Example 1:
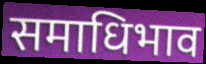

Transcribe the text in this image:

समाधिभाव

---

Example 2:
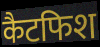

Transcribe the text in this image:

कैटफिश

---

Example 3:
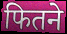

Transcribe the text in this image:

फितने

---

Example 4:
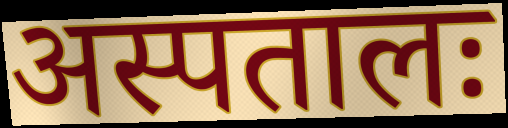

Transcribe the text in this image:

अस्पतालः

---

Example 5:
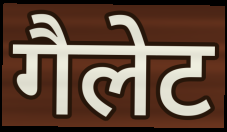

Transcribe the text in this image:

गैलेट